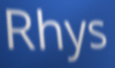
Rhys